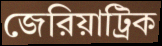
জেরিয়াট্রিক